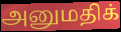
அனுமதிக்